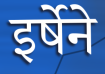
इर्षेने